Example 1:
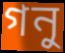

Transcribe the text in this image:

গনু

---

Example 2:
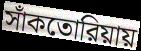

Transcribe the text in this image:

সাঁকতোরিয়ায়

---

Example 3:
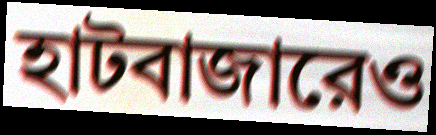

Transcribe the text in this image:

হাটবাজারেও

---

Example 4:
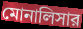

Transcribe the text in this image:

মোনালিসার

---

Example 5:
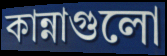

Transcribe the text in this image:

কান্নাগুলো